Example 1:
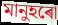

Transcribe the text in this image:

মানুহৰো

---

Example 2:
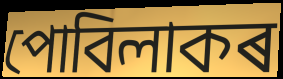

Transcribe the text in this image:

পোবিলাকৰ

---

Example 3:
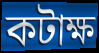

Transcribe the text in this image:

কটাক্ষ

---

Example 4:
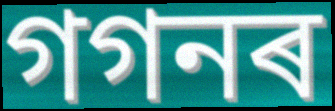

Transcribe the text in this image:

গগনৰ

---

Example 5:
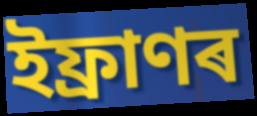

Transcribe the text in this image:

ইফ্ৰাণৰ